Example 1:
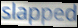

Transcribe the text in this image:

slapped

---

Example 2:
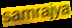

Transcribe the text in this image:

samrajya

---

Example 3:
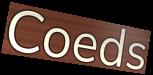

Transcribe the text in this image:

Coeds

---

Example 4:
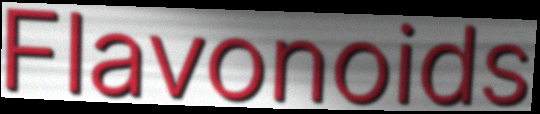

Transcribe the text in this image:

Flavonoids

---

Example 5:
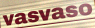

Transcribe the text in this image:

vasvaso